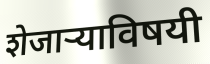
शेजाऱ्याविषयी